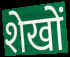
शेखों